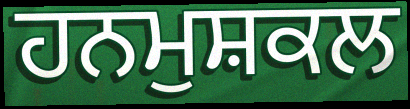
ਹਨਮੁਸ਼ਕਲ